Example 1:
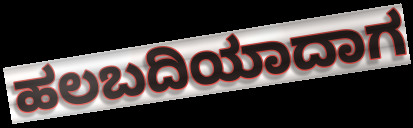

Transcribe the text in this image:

ಹಲಬದಿಯಾದಾಗ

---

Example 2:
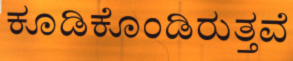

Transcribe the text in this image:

ಕೂಡಿಕೊಂಡಿರುತ್ತವೆ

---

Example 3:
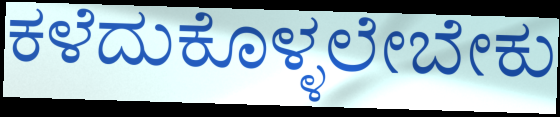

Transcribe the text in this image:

ಕಳೆದುಕೊಳ್ಳಲೇಬೇಕು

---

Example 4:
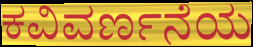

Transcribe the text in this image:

ಕವಿವರ್ಣನೆಯ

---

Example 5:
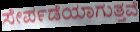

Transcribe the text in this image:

ಸೇರ್ಪಡೆಯಾಗುತ್ತವೆ